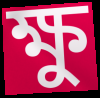
ক্ষু